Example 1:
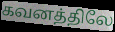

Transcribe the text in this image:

கவனத்திலே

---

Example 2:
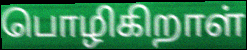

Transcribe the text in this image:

பொழிகிறாள்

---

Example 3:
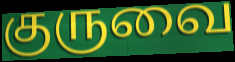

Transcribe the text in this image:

குருவை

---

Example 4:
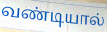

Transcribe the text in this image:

வண்டியால்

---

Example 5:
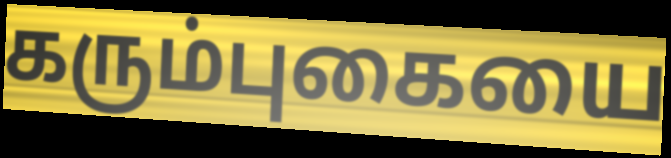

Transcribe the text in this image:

கரும்புகையை